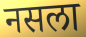
नसला